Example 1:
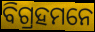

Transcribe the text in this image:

ବିଗ୍ରହମନେ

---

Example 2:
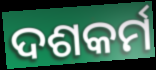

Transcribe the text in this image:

ଦଶକର୍ମ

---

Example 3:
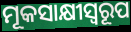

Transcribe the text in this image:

ମୂକସାକ୍ଷୀସ୍ୱରୂପ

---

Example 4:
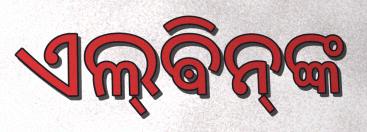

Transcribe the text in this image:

ଏଲ୍‌ଵିନ୍‌ଙ୍କ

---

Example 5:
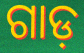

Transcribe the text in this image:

ଗାଡ଼